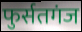
फुर्सतगंज